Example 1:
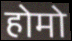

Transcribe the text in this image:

होमो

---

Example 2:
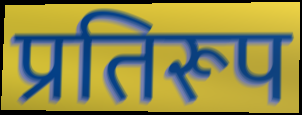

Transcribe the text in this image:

प्रतिरूप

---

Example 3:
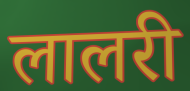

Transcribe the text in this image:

लालरी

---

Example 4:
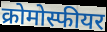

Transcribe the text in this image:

क्रोमोस्फीयर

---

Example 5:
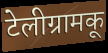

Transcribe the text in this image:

टेलीग्रामकू